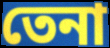
তেনা